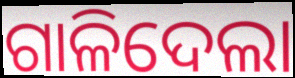
ଗାଳିଦେଲା